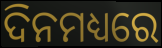
ଦିନମଧ୍ୟରେ